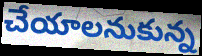
చేయాలనుకున్న